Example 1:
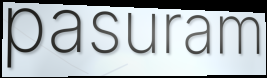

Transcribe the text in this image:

pasuram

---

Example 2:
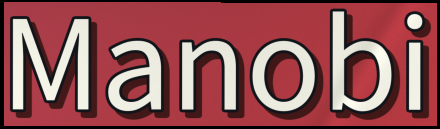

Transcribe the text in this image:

Manobi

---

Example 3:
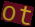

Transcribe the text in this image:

ot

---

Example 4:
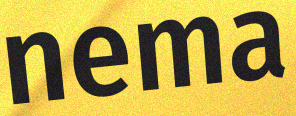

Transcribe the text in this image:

nema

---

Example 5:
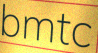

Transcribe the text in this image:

bmtc